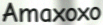
Amaxoxo